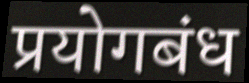
प्रयोगबंध